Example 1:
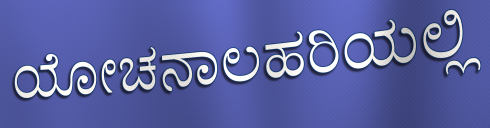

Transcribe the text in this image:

ಯೋಚನಾಲಹರಿಯಲ್ಲಿ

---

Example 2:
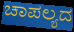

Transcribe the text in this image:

ಚಾಪಲ್ಯದ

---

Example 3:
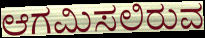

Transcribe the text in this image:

ಆಗಮಿಸಲಿರುವ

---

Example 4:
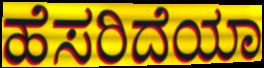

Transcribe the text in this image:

ಹೆಸರಿದೆಯಾ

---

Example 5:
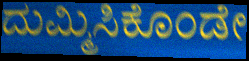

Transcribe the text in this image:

ದುಮ್ಮಿಸಿಕೊಂಡೇ